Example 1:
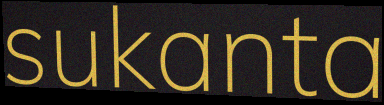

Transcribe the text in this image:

sukanta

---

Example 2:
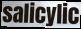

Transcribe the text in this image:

salicylic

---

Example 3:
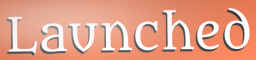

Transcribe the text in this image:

Launched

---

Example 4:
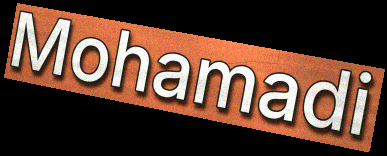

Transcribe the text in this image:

Mohamadi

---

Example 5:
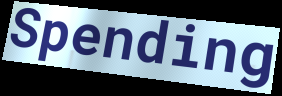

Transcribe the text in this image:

Spending